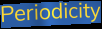
Periodicity